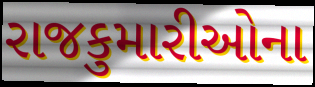
રાજકુમારીઓના